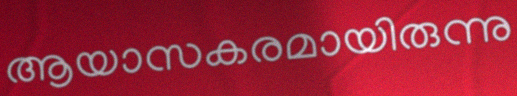
ആയാസകരമായിരുന്നു